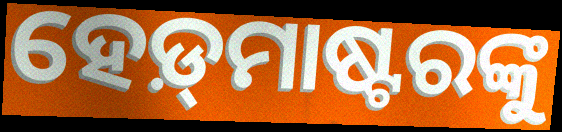
ହେଡ଼୍‌ମାଷ୍ଟରଙ୍କୁ